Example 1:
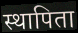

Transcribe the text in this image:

स्थापिता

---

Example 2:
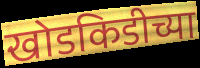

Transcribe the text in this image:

खोडकिडीच्या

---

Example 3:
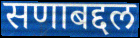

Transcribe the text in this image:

सणाबद्दल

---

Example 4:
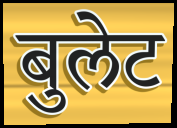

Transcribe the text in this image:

बुलेट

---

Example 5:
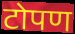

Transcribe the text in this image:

टोपण